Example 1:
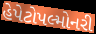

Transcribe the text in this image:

હેપેટોપલ્મોનરી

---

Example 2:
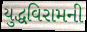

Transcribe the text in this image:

યુદ્ધવિરામની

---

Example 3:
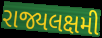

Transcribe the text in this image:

રાજ્યલક્ષમી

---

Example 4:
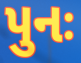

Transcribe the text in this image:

પુનઃ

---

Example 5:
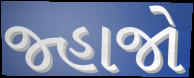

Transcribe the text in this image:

જ્હાજો